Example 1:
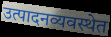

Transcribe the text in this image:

उत्पादनव्यवस्थेत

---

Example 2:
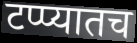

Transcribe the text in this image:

टप्प्यातच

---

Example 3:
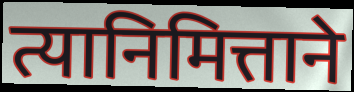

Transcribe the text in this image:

त्यानिमित्ताने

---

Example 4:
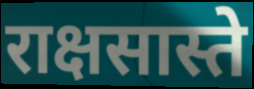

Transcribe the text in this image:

राक्षसास्ते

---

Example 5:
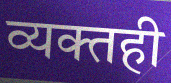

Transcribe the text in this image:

व्यक्तही